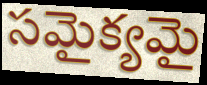
సమైక్యమై